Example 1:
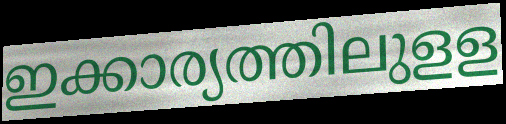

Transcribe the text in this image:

ഇക്കാര്യത്തിലുളള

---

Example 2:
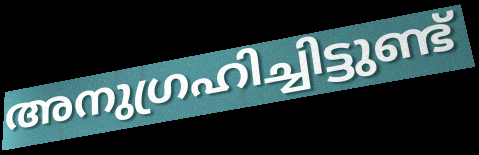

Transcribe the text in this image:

അനുഗ്രഹിച്ചിട്ടുണ്ട്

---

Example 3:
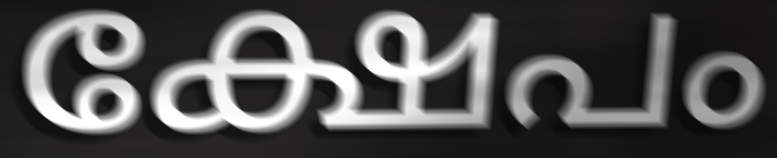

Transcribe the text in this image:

ക്ഷേപം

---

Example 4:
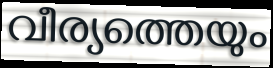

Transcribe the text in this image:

വീര്യത്തെയും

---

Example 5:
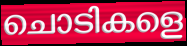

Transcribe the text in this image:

ചൊടികളെ